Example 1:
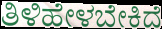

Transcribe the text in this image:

ತಿಳಿಹೇಳಬೇಕಿದೆ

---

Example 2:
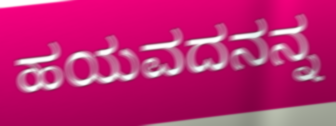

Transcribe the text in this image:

ಹಯವದನನ್ನ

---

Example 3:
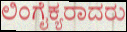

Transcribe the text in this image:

ಲಿಂಗೈಕ್ಯರಾದರು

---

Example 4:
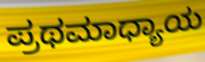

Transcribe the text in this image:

ಪ್ರಥಮಾಧ್ಯಾಯ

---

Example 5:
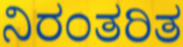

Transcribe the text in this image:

ನಿರಂತರಿತ